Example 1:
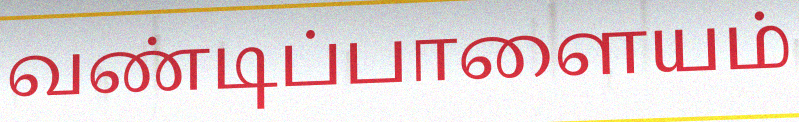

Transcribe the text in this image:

வண்டிப்பாளையம்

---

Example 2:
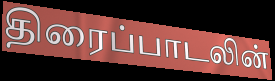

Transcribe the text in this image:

திரைப்பாடலின்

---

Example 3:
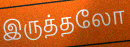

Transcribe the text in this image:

இருத்தலோ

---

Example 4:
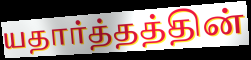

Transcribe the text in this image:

யதார்த்தத்தின்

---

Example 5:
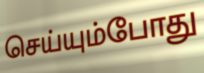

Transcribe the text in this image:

செய்யும்போது